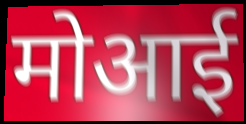
मोआई